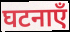
घटनाएँ